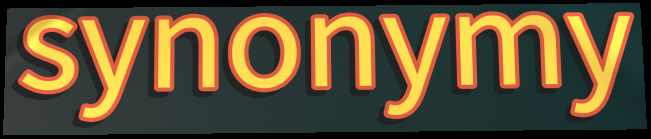
synonymy